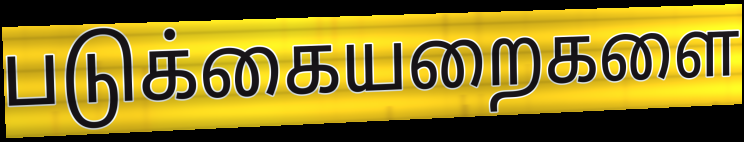
படுக்கையறைகளை